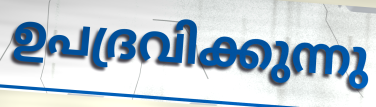
ഉപദ്രവിക്കുന്നു